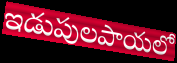
ఇడుపులపాయలో